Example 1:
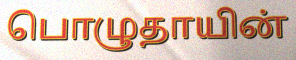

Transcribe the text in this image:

பொழுதாயின்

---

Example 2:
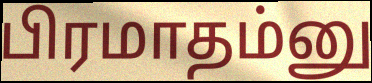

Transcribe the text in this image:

பிரமாதம்னு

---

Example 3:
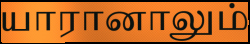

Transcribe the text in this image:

யாரானாலும்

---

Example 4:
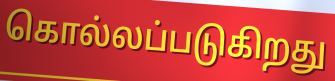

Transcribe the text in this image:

கொல்லப்படுகிறது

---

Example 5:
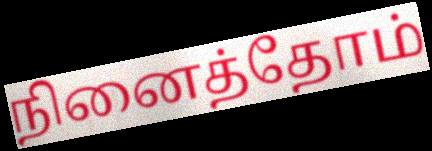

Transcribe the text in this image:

நினைத்தோம்